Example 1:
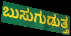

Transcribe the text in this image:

ಬುಸುಗುಡುತ್ತ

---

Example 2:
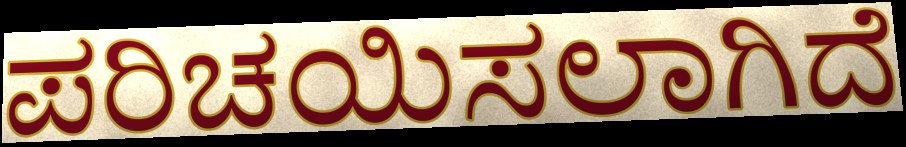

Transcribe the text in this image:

ಪರಿಚಯಿಸಲಾಗಿದೆ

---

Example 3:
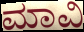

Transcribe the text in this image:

ಮಾವಿ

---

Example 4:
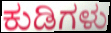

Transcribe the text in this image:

ಕುಡಿಗಳು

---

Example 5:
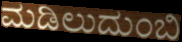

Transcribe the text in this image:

ಮಡಿಲುದುಂಬಿ